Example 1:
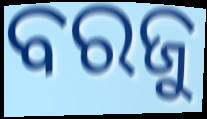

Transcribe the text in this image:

ବରଜୁ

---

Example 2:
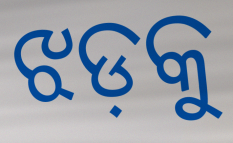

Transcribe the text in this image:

ଝଡ଼କୁ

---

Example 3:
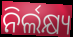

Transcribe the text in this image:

ନିର୍ଲକ୍ଷ୍ୟ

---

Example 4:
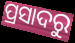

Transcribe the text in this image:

ପ୍ରସାଦରୁ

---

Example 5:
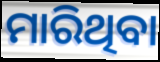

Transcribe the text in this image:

ମାରିଥିବା